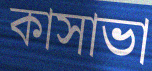
কাসাভা